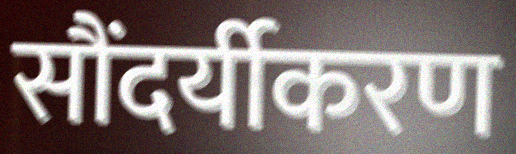
सौंदर्यीकरण